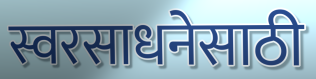
स्वरसाधनेसाठी